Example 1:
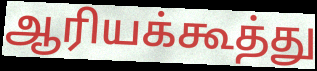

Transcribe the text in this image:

ஆரியக்கூத்து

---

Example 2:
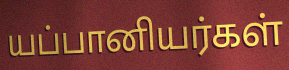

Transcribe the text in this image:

யப்பானியர்கள்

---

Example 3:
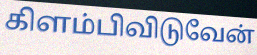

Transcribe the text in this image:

கிளம்பிவிடுவேன்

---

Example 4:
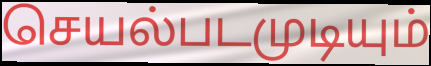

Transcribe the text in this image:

செயல்படமுடியும்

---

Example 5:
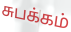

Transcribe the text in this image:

சுபக்கம்